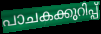
പാചകക്കുറിപ്പ്